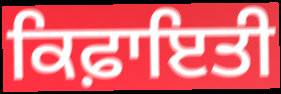
ਕਿਫ਼ਾਇਤੀ